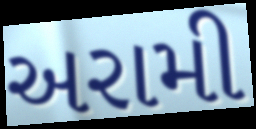
અરામી